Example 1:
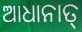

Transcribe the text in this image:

ଆଧାନାତ୍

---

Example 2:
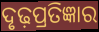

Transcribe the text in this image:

ଦୃଢ଼ପ୍ରତିଜ୍ଞାର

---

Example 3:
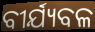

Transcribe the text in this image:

ବୀର୍ଯ୍ୟବଳ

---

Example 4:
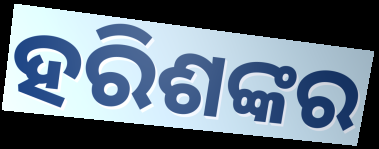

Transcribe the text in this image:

ହରିଶଙ୍କର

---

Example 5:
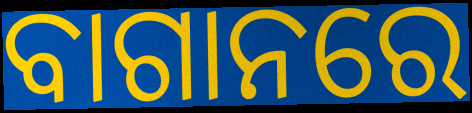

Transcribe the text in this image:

ବାଗାନରେ